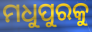
ମଧୁପୁରକୁ